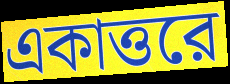
একাত্তরে